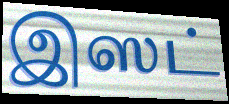
இஸட்